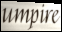
umpire